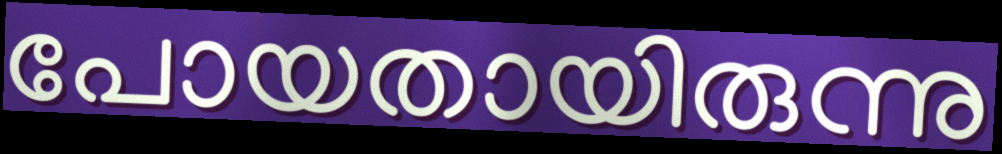
പോയതായിരുന്നു